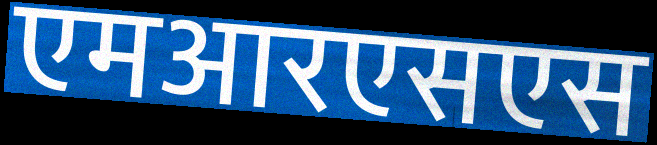
एमआरएसएस